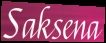
Saksena